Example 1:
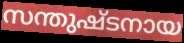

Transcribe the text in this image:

സന്തുഷ്ടനായ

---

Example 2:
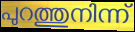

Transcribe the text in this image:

പുറത്തുനിന്ന്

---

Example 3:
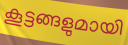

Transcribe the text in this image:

കൂട്ടങ്ങളുമായി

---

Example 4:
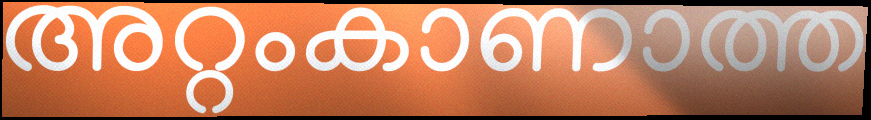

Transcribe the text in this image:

അറ്റംകാണാത്ത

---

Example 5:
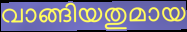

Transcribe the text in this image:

വാങ്ങിയതുമായ